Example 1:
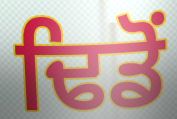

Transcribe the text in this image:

ਢਿਡੋਂ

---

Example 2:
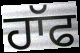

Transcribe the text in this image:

ਹਾੱਫ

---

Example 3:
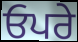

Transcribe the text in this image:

ਓਪਰੇ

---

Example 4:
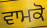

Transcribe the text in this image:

ਵਾਮਕੋ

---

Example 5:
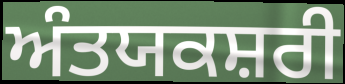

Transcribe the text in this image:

ਅੰਤਯਕਸ਼ਰੀ